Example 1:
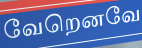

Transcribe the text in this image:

வேறெனவே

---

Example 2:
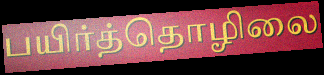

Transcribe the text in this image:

பயிர்த்தொழிலை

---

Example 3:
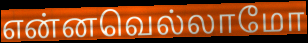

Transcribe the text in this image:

என்னவெல்லாமோ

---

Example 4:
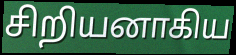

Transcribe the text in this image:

சிறியனாகிய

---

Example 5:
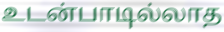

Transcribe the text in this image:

உடன்பாடில்லாத